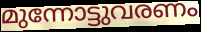
മുന്നോട്ടുവരണം